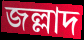
জল্লাদ